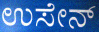
ಉಸೇನ್